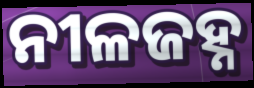
ନୀଳଜହ୍ନ